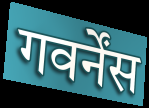
गवर्नेंस